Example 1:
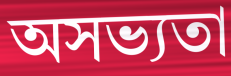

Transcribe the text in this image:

অসভ্যতা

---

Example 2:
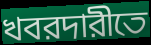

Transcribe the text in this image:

খবরদারীতে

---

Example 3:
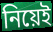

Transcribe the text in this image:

নিয়েই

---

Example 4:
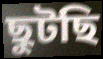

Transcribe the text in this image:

ছুটছি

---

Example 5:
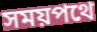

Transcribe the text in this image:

সময়পথে